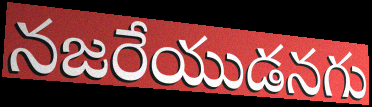
నజరేయుడనగు